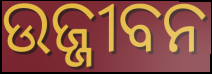
ଉଜ୍ଜୀବନ